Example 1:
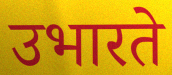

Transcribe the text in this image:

उभारते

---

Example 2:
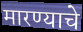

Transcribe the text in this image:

मारण्याचे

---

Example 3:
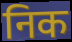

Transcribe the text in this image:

निक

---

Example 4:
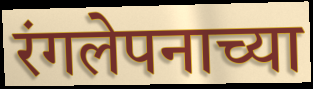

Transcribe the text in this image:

रंगलेपनाच्या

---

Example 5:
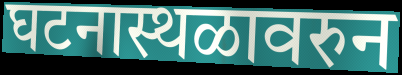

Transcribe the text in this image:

घटनास्थळावरुन